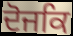
ਦੋਜਕਿ